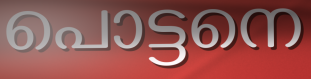
പൊട്ടനെ